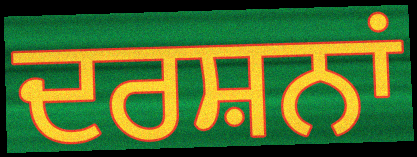
ਦਰਸ਼ਨਾਂ